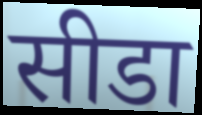
सीडा